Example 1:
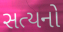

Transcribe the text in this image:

સત્યનો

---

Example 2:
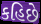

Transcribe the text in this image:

કહિછે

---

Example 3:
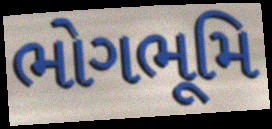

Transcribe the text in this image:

ભોગભૂમિ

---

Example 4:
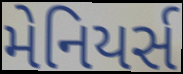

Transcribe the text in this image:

મેનિયર્સ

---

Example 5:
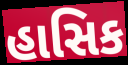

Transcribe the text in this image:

હાસિક